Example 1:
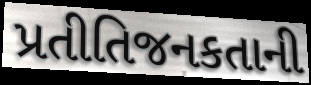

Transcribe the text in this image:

પ્રતીતિજનકતાની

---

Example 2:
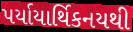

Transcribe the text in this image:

પર્યાયાર્થિકનયથી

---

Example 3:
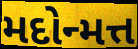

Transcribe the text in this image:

મદોન્મત્ત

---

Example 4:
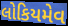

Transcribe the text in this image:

લોકિયમેવ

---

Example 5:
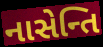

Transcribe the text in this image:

નાસેન્તિ